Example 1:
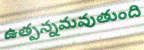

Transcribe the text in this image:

ఉత్పన్నమవుతుంది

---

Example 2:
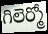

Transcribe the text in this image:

గిలెర్మో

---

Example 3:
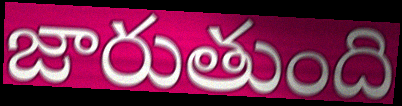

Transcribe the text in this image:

జారుతుంది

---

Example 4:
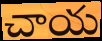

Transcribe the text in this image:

చాయ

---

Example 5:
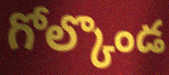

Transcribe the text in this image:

గోల్కొండ